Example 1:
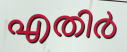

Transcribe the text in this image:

എതിർ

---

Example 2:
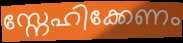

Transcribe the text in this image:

സ്നേഹിക്കേണം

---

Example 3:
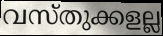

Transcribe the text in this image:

വസ്തുക്കളല്ല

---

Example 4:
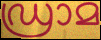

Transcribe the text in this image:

ഡ്രാമ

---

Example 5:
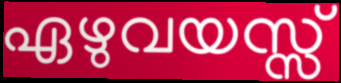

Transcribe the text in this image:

ഏഴുവയസ്സ്